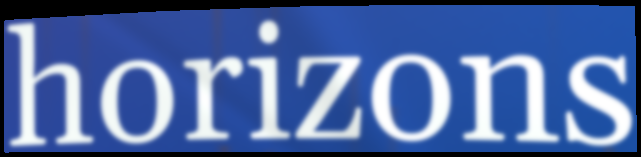
horizons